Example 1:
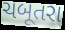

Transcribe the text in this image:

ચબૂતરા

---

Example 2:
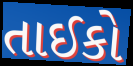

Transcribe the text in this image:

તાઈકો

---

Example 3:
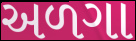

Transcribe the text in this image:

અળગા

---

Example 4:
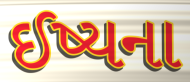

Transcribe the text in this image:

ઈષ્યના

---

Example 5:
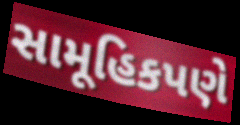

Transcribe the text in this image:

સામૂહિકપણે